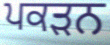
ਪਕੜਨ